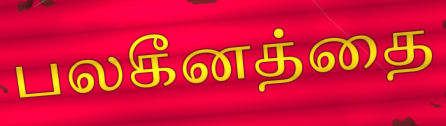
பலகீனத்தை